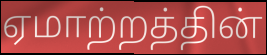
ஏமாற்றத்தின்